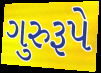
ગુરુરૂપે